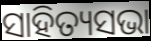
ସାହିତ୍ୟସଭା